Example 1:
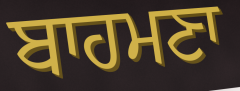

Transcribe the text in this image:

ਬਾਹਮਣਾ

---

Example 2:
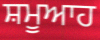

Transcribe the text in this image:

ਸ਼ਮੂਆਹ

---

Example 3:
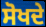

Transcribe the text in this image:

ਸੋਖਦੇ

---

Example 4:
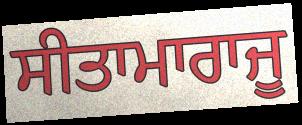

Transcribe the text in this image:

ਸੀਤਾਮਾਰਾਜੂ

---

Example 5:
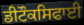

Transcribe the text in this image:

ਡੀਟੌਕਸਿਫਾਈ